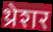
थ्रेशर